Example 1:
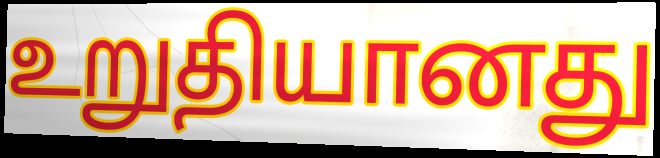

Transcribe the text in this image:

உறுதியானது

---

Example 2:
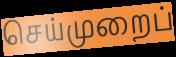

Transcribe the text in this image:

செய்முறைப்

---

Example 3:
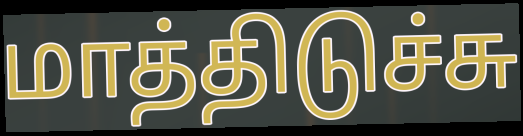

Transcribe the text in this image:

மாத்திடுச்சு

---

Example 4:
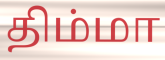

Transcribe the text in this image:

திம்மா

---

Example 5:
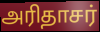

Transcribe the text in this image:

அரிதாசர்